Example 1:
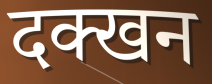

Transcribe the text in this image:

दक्खन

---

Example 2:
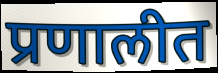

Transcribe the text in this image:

प्रणालीत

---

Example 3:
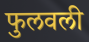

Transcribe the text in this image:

फुलवली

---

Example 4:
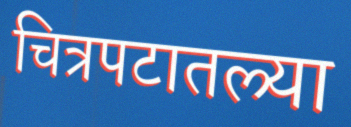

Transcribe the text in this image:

चित्रपटातल्या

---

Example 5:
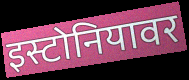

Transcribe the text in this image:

इस्टोनियावर